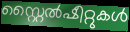
സ്റ്റൈൽഷീറ്റുകൾ